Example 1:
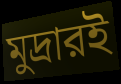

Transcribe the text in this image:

মুদ্রারই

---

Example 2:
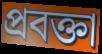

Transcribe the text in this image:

প্রবক্তা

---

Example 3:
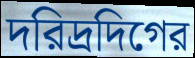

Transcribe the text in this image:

দরিদ্রদিগের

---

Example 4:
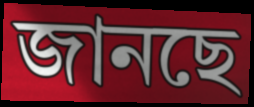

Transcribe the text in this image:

জানছে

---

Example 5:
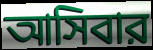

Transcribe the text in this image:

আসিবার